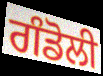
ਗੰਡੋਲੀ